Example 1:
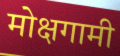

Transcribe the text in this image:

मोक्षगामी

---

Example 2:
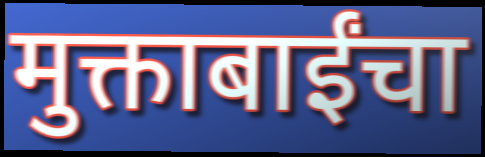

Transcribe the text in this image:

मुक्ताबाईंचा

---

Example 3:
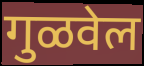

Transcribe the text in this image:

गुळवेल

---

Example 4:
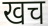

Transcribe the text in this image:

खच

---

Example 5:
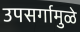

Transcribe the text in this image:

उपसर्गामुळे